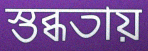
স্তব্ধতায়